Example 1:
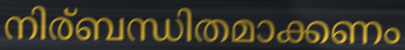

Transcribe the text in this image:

നിര്ബന്ധിതമാക്കണം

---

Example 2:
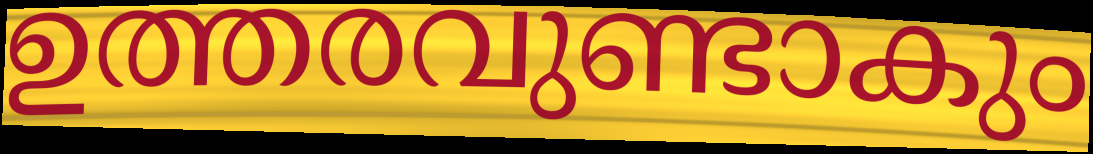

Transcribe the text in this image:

ഉത്തരവുണ്ടാകും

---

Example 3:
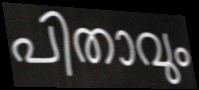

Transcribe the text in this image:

പിതാവും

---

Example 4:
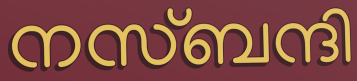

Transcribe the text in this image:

നസ്ബന്ദി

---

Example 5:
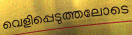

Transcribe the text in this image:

വെളിപ്പെടുത്തലോടെ